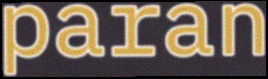
paran